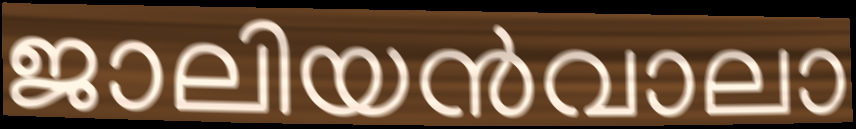
ജാലിയൻവാലാ